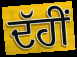
ਦੱਹੀਂ